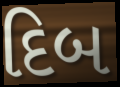
દિબ